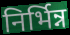
निर्भिन्न